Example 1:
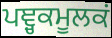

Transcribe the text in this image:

ਪਞ੍ਚਕਮੂਲਕਂ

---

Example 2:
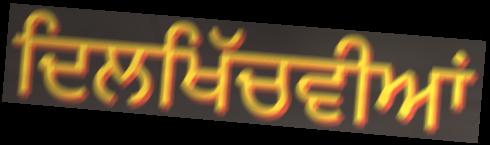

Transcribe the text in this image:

ਦਿਲਖਿੱਚਵੀਆਂ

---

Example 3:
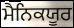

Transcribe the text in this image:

ਮੈਨਿਕਯੂਰ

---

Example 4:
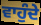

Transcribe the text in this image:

ਵਾਹੁੰਦੇ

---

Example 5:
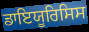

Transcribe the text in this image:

ਡਾਇਯੂਰਿਸਿਸ